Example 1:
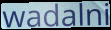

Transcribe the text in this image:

wadalni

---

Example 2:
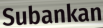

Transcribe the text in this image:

Subankan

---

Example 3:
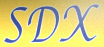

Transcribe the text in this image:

SDX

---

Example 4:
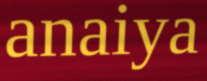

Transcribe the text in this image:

anaiya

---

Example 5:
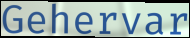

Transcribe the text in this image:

Gehervar